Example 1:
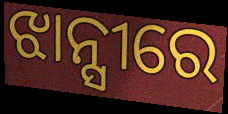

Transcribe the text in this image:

ଝାନ୍ସୀରେ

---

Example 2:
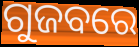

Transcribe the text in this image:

ଗୁଜବରେ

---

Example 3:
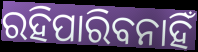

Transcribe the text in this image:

ରହିପାରିବନାହିଁ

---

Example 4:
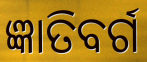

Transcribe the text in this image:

ଜ୍ଞାତିବର୍ଗ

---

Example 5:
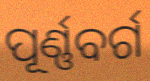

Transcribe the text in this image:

ପୂର୍ଣ୍ଣବର୍ଗ